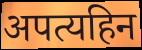
अपत्यहिन